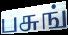
பசுங்